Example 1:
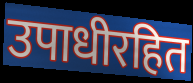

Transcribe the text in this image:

उपाधीरहित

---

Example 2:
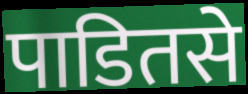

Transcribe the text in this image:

पाडितसे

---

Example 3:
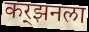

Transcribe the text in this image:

कर्झनला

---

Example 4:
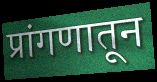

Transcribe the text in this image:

प्रांगणातून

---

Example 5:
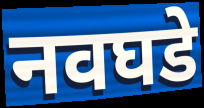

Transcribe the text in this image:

नवघडे